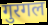
गुरगल